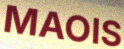
MAOIS